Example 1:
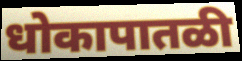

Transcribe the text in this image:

धोकापातळी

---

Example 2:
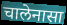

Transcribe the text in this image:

चालेनासा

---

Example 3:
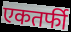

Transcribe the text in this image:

एकतर्फी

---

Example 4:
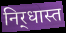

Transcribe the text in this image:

निर्धास्त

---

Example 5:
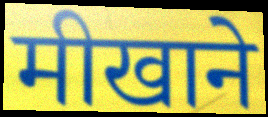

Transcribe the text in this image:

मीखाने